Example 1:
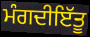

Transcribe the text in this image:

ਮੰਗਦੀਇੱਤੂ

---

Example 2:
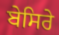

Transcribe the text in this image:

ਬੇਸਿਰੇ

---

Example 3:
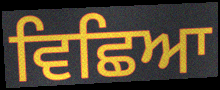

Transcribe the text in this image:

ਵਿਛਿਆ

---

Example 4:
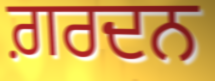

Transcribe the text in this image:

ਗ਼ਰਦਨ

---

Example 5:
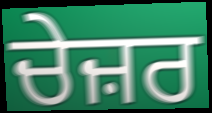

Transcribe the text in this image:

ਚੇਜ਼ਰ